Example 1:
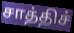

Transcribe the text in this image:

சாத்திச்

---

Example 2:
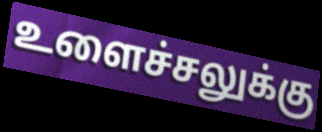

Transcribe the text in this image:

உளைச்சலுக்கு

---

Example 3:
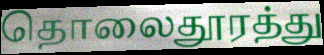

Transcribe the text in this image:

தொலைதூரத்து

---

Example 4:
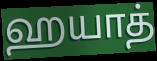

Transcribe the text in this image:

ஹயாத்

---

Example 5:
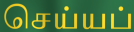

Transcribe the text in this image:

செய்யப்